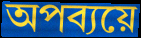
অপব্যয়ে